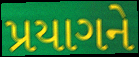
પ્રયાગને